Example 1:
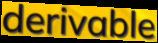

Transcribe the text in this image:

derivable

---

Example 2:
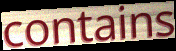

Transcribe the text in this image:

contains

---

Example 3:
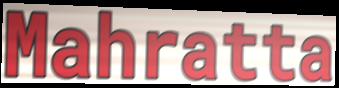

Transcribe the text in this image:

Mahratta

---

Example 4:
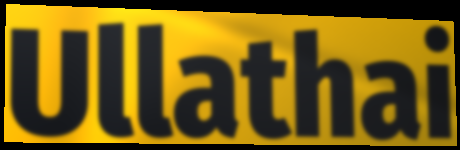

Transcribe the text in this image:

Ullathai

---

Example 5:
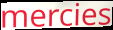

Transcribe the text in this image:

mercies